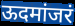
ऊदमांजरं